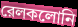
রেলকলোনি